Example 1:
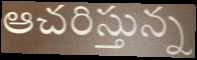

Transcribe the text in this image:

ఆచరిస్తున్న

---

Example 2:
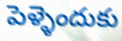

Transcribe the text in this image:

పెళ్ళెందుకు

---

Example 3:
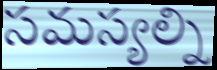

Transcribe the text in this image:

సమస్యల్ని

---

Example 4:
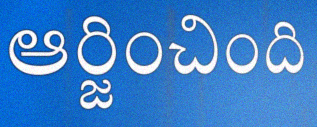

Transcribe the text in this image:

ఆర్జించింది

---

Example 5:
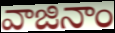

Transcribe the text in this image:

వాజినాం